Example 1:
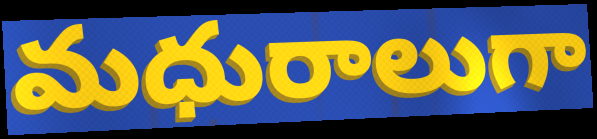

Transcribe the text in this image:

మధురాలుగా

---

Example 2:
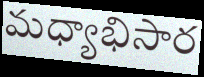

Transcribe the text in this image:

మధ్యాభిసార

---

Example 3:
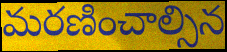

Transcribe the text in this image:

మరణించాల్సిన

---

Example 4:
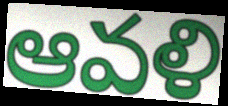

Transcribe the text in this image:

ఆవళి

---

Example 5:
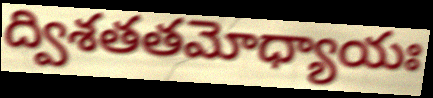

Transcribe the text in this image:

ద్విశతతమోధ్యాయః